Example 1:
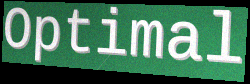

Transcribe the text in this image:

Optimal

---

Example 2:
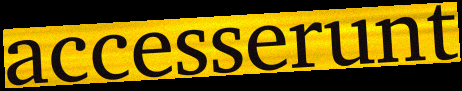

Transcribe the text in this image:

accesserunt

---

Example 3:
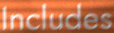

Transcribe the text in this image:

Includes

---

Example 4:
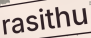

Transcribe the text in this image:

rasithu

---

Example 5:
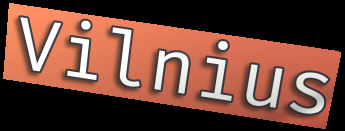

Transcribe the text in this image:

Vilnius